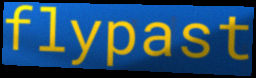
flypast